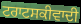
ਟਰਾਟਸਕੀਵਾਦੀ